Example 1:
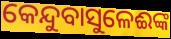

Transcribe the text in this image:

କେନ୍ଦୁବାସୁଳେଈଙ୍କ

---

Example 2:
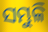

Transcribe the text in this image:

ସମ୍ଭୁଳି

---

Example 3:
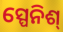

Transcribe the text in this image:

ସ୍ପେନିଶ୍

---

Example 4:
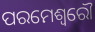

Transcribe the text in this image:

ପରମେଶ୍ଵରୌ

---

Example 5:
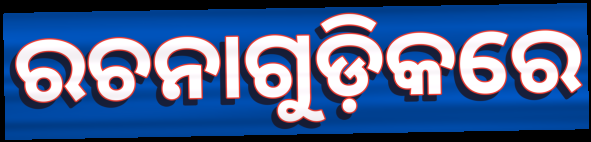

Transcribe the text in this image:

ରଚନାଗୁଡ଼ିକରେ